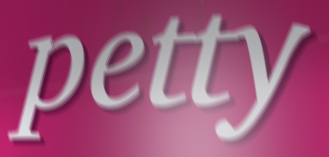
petty